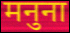
मनुना